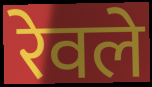
रेवले